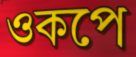
ওকপে